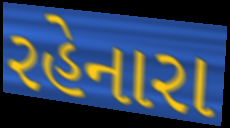
રહેનારા